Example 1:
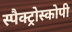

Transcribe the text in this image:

स्पैक्ट्रोस्कोपी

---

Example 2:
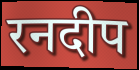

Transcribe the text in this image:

रनदीप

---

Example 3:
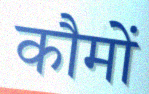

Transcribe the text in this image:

कौमों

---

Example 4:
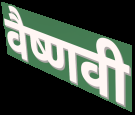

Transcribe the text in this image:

वैष्णवी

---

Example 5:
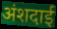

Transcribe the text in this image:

अंशदाई